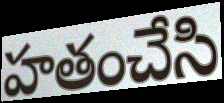
హతంచేసి